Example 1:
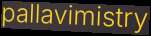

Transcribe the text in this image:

pallavimistry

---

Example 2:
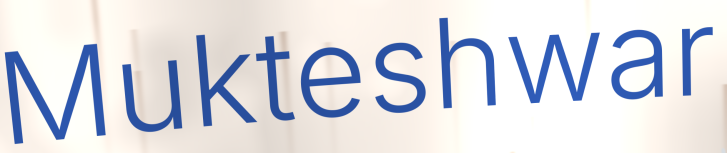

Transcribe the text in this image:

Mukteshwar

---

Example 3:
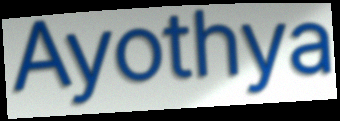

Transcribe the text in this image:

Ayothya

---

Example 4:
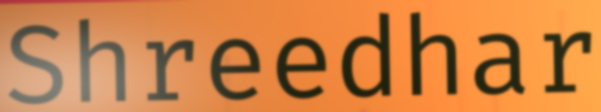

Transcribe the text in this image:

Shreedhar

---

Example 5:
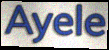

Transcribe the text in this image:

Ayele